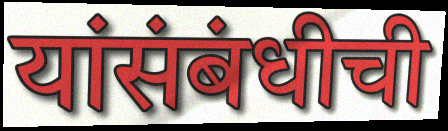
यांसंबंधीची